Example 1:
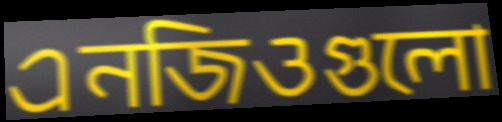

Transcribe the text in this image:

এনজিওগুলো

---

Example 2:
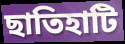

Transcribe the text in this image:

ছাতিহাটি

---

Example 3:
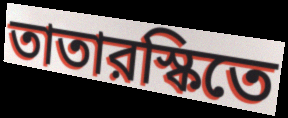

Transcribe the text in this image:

তাতারস্কিতে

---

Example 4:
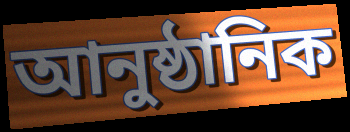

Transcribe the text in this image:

আনুষ্ঠানিক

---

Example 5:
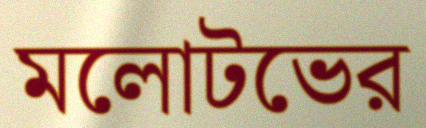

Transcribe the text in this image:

মলোটভের